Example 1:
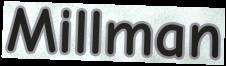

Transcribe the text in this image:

Millman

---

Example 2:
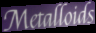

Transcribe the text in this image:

Metalloids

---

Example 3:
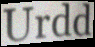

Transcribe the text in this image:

Urdd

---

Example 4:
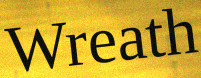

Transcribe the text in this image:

Wreath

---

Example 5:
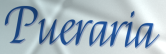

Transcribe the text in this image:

Pueraria